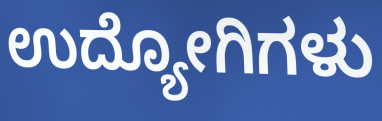
ಉದ್ಯೋಗಿಗಳು